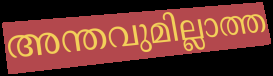
അന്തവുമില്ലാത്ത